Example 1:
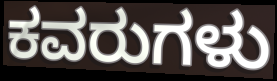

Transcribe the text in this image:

ಕವರುಗಳು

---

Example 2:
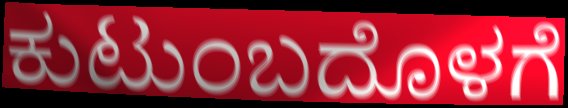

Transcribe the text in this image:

ಕುಟುಂಬದೊಳಗೆ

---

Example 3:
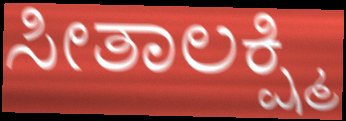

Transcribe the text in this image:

ಸೀತಾಲಕ್ಷ್ಮಿ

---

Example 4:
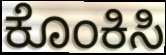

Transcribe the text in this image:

ಕೊಂಕಿಸಿ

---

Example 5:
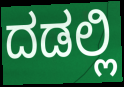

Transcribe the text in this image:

ದಡಲ್ಲಿ